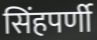
सिंहपर्णी